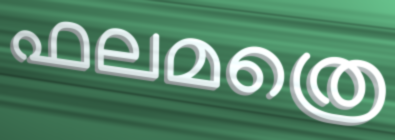
ഫലമത്രെ